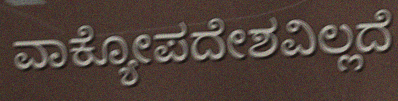
ವಾಕ್ಯೋಪದೇಶವಿಲ್ಲದೆ